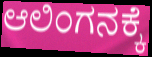
ಆಲಿಂಗನಕ್ಕೆ